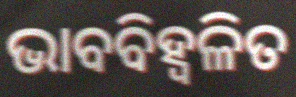
ଭାବବିହ୍ବଳିତ